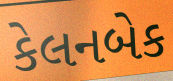
કેલનબેક